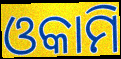
ଓକାମି